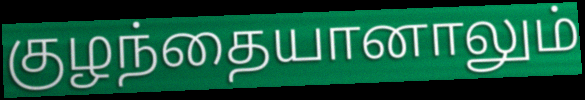
குழந்தையானாலும்